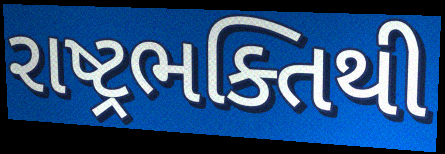
રાષ્ટ્રભક્તિથી